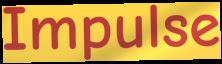
Impulse